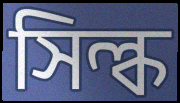
সিল্ক